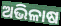
ଅଭିଳାଷ